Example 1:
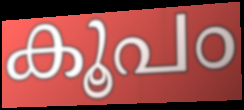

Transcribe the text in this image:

കൂപം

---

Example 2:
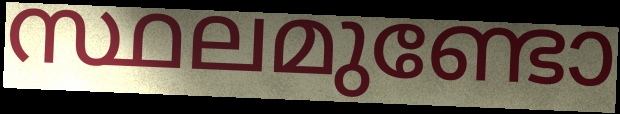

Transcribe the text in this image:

സ്ഥലമുണ്ടോ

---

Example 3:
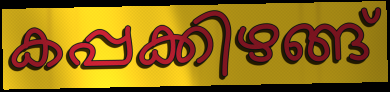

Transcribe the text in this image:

കപ്പക്കിഴങ്ങ്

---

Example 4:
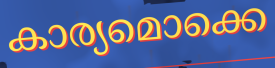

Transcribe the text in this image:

കാര്യമൊക്കെ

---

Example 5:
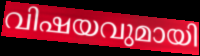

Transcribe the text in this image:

വിഷയവുമായി